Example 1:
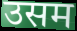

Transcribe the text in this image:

उसम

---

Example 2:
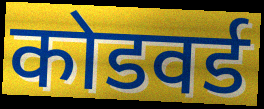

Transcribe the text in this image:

कोडवर्ड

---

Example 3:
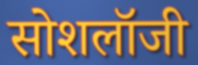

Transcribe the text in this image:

सोशलॉजी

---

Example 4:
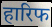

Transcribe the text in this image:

हारिफ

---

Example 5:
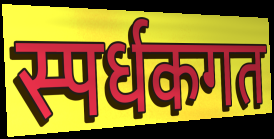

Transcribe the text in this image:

स्पर्धकगत